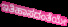
ಇತಿಹಾಸದಂತೆಯೇ